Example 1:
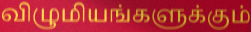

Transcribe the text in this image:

விழுமியங்களுக்கும்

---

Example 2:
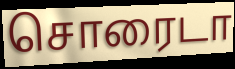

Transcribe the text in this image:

சொரைடா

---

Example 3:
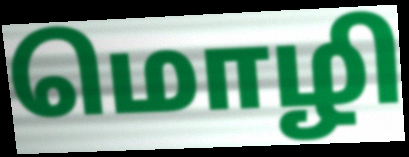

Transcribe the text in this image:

மொழி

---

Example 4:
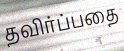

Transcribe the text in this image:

தவிர்ப்பதை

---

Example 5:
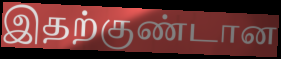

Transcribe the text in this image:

இதற்குண்டான